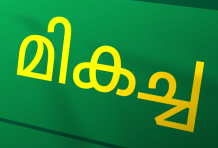
മികച്ച